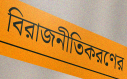
বিরাজনীতিকরণের